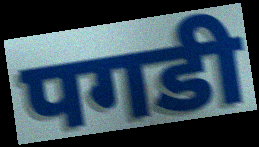
पगडी